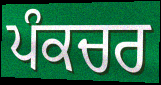
ਪੰਕਚਰ